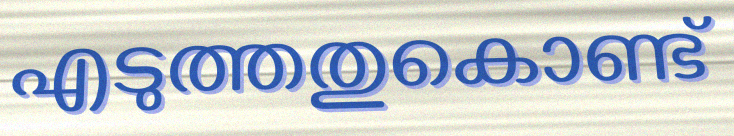
എടുത്തതുകൊണ്ട്